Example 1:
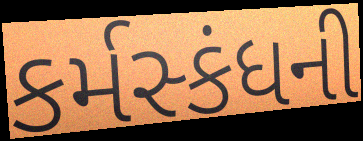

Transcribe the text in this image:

કર્મસ્કંધની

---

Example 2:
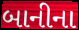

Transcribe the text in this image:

બાનીના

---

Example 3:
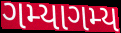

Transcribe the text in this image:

ગમ્યાગમ્ય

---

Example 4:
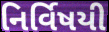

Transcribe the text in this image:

નિર્વિષયી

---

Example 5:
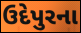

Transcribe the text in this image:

ઉદેપુરના